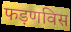
फड़णविस